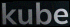
kube